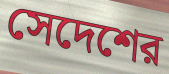
সেদেশের